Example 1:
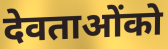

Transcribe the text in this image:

देवताओंको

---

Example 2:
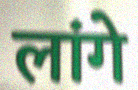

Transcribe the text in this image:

लांगे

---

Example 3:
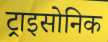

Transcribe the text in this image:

ट्राइसोनिक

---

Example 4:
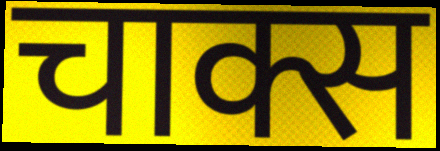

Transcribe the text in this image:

चाक्स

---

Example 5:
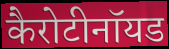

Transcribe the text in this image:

कैरोटीनॉयड